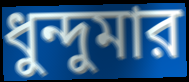
ধুন্দুমার